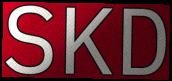
SKD